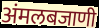
अंमलबजाणी